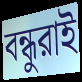
বন্ধুরাই